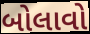
બોલાવો